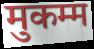
मुकम्म